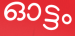
ഓട്ടം